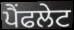
ਪੈਂਫਲੇਟ